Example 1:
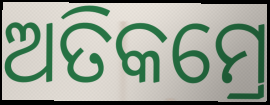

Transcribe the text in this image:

ଅତିକମ୍ରେ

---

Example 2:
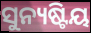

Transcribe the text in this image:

ସୁନ୍ୟଷ୍ଟିୟ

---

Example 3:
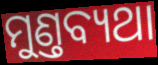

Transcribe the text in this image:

ମୁଣ୍ତବ୍ୟଥା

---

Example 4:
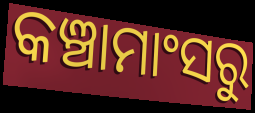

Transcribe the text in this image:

କଞ୍ଚାମାଂସରୁ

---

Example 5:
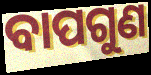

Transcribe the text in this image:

ବାପଗୁଣ